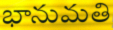
భానుమతి